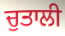
ਚੁਤਾਲੀ